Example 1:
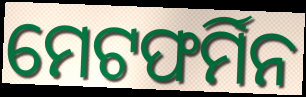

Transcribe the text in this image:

ମେଟଫର୍ମିନ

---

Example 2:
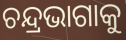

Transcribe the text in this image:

ଚନ୍ଦ୍ରଭାଗାକୁ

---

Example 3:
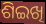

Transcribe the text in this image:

ଶିଇଖି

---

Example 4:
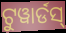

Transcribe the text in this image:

ଟୁୱାର୍ଡସ୍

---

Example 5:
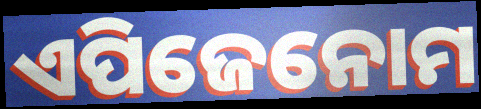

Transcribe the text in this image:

ଏପିଜେନୋମ